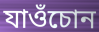
যাওঁচোন